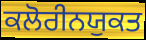
ਕਲੋਰੀਨਯੁਕਤ